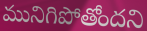
మునిగిపోతోందని